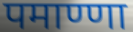
पमाण्णा